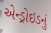
એન્ડ્રોઇડનું